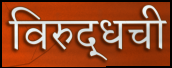
विरुद्धची